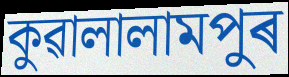
কুৱালালামপুৰ